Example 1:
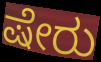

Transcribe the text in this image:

ಷೇರು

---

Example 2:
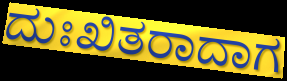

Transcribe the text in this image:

ದುಃಖಿತರಾದಾಗ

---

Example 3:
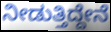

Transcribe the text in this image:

ನೀಡುತ್ತಿದ್ದೇನೆ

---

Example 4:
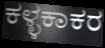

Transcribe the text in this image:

ಕಳ್ಳಕಾಕರ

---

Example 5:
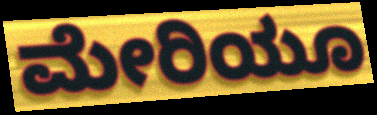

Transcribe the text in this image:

ಮೇರಿಯೂ